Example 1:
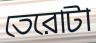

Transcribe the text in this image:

তেরোটা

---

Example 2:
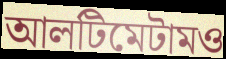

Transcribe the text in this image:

আলটিমেটামও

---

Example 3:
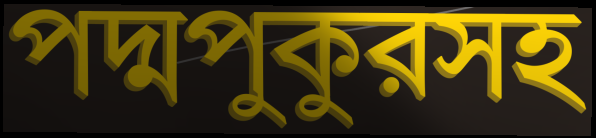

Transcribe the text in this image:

পদ্মপুকুরসহ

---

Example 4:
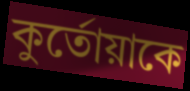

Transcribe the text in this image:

কুর্তোয়াকে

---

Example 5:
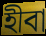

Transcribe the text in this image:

হীবা